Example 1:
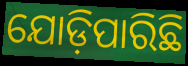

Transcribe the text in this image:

ଯୋଡ଼ିପାରିଛି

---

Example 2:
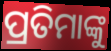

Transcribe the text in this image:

ପ୍ରତିମାଙ୍କୁ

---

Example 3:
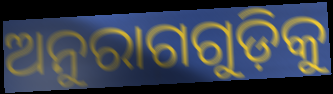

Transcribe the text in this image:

ଅନୁରାଗଗୁଡ଼ିକୁ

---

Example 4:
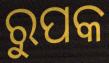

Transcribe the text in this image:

ରୁପକ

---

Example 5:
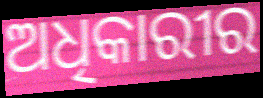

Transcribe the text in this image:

ଅଧିକାରୀର